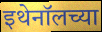
इथेनॉलच्या